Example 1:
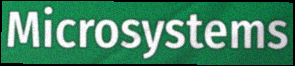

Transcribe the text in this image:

Microsystems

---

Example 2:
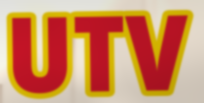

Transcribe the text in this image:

UTV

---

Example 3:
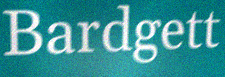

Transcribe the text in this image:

Bardgett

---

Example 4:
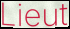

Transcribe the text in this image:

Lieut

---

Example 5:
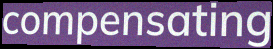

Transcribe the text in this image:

compensating